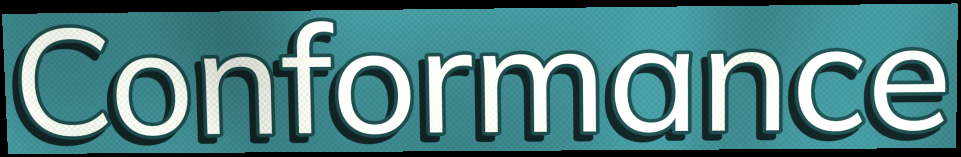
Conformance